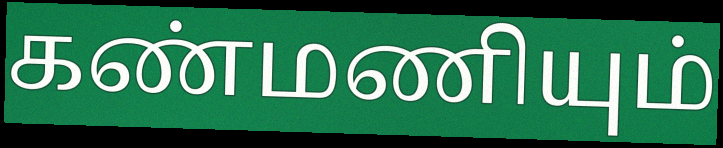
கண்மணியும்